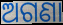
ଅଗଣା